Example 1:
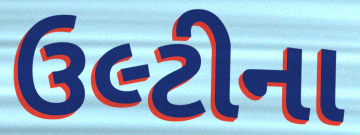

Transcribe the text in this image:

ઉલ્ટીના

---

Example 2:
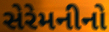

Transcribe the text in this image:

સેરેમનીનો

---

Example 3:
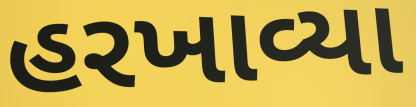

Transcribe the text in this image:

હરખાવ્યા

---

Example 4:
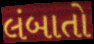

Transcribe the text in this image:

લંબાતો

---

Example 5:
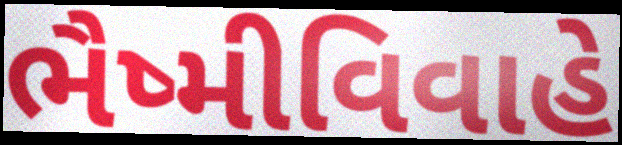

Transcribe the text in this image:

ભૈષ્મીવિવાહે